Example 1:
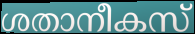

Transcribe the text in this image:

ശതാനീകസ്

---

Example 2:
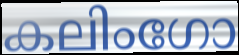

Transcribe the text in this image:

കലിംഗോ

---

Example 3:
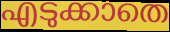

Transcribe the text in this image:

എടുക്കാതെ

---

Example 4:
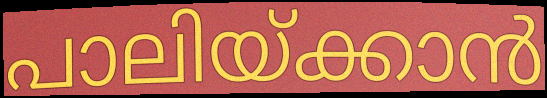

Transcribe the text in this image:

പാലിയ്ക്കാൻ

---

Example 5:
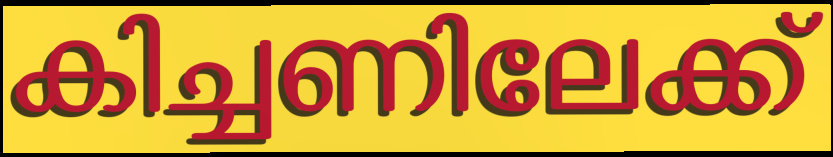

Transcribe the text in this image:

കിച്ചണിലേക്ക്